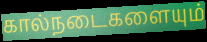
கால்நடைகளையும்